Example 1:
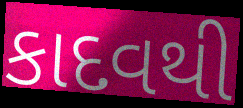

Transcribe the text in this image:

કાદવથી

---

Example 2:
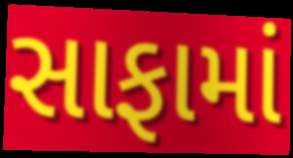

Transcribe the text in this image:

સાફામાં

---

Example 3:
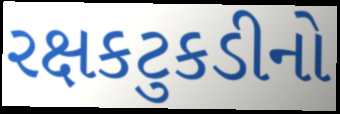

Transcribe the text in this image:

રક્ષકટુકડીનો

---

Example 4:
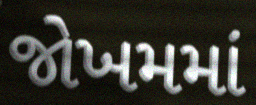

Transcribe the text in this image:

જોખમમાં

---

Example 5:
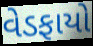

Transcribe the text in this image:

વેડફાયો